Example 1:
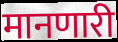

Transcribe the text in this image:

मानणारी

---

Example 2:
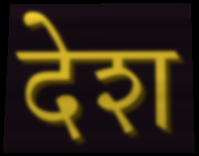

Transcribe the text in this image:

देश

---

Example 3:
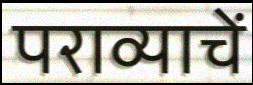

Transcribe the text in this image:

पराव्याचें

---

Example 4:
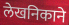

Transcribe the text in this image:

लेखनिकाने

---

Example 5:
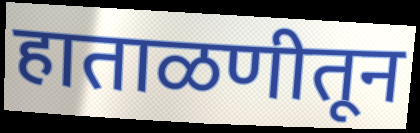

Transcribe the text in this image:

हाताळणीतून